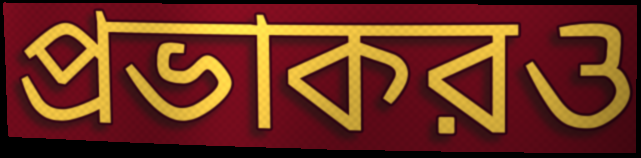
প্রভাকরও